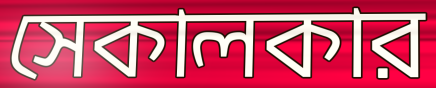
সেকালকার